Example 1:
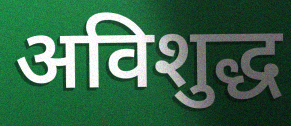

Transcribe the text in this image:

अविशुद्ध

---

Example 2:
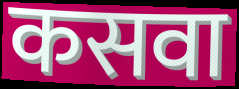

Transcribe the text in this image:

कसवा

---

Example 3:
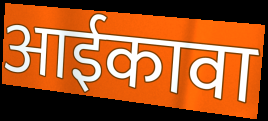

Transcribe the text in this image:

आईकावा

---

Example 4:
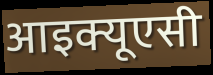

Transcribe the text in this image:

आइक्यूएसी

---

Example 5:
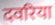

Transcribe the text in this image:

दवरिया